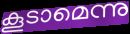
കൂടാമെന്നു